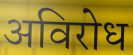
अविरोध